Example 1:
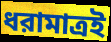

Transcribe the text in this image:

ধরামাত্রই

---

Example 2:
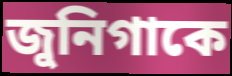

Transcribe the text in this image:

জুনিগাকে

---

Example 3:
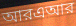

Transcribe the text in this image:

আরএআর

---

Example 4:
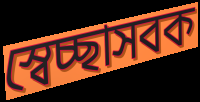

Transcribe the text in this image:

স্বেচ্ছাসবক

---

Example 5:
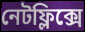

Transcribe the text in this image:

নেটফ্লিক্সে